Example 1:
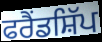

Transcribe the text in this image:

ਫਰੈਂਡਸ਼ਿੱਪ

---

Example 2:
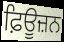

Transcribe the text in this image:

ਫ਼ਿਊਜ਼ਨ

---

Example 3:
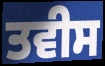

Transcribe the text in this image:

ਤਵੀਸ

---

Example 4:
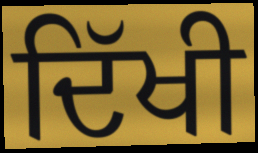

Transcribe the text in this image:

ਦਿੱਖੀ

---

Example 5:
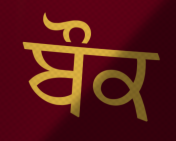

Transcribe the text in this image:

ਬੌਕ